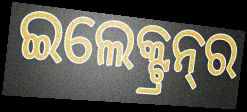
ଇଲେକ୍ଟ୍ରନ୍‌ର